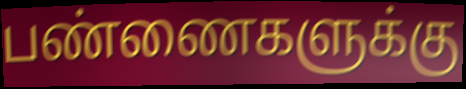
பண்ணைகளுக்கு